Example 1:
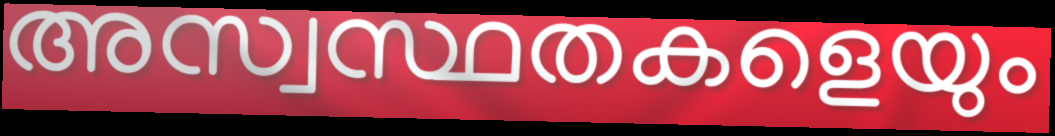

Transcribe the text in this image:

അസ്വസ്ഥതകളെയും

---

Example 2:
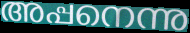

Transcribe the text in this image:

അപ്പനെന്നു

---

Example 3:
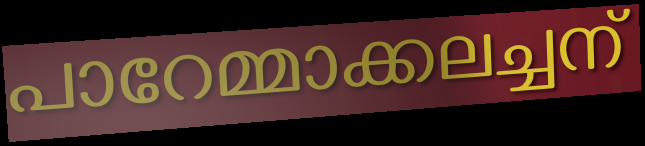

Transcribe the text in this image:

പാറേമ്മാക്കലച്ചന്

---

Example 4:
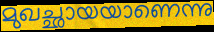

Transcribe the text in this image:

മുഖച്ഛായയാണെന്നു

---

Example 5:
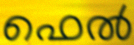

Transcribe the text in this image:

ഫെൽ